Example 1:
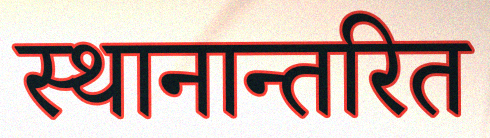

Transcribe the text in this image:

स्थानान्तरित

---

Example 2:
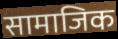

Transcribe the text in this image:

सामाजिक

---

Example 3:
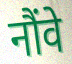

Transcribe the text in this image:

नौंवे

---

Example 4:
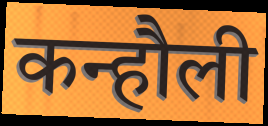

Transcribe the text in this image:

कन्हौली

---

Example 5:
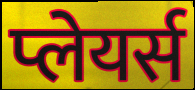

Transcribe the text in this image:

प्‍लेयर्स